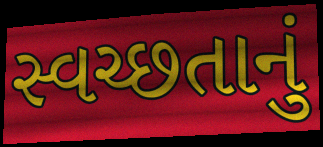
સ્વચ્છતાનું